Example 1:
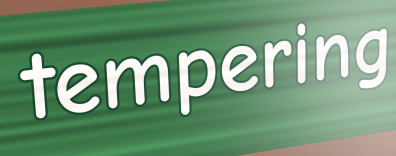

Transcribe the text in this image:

tempering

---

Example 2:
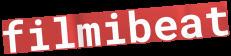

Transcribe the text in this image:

filmibeat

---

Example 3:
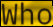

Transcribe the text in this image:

Who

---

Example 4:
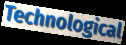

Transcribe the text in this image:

Technological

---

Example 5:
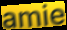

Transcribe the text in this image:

amie